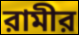
রামীর